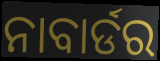
ନାବାର୍ଡର